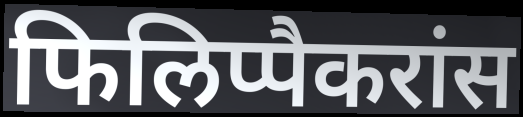
फिलिप्पैकरांस